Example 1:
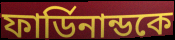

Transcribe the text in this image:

ফার্ডিনান্ডকে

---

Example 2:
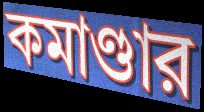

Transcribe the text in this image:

কমাণ্ডার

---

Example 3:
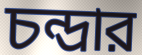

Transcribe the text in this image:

চন্দ্রার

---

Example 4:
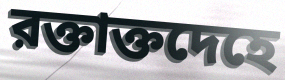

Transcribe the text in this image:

রক্তাক্তদেহে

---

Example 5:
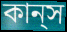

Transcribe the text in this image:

কান্‌স